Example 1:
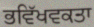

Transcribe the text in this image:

ਭਵਿੱਖਵਕਤਾ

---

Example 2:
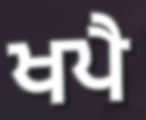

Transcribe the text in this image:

ਖਪੈ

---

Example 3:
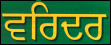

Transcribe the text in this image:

ਵਰਿਦਰ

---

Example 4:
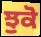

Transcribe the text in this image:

ਝੁਕੋ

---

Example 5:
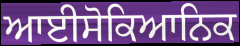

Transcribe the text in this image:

ਆਈਸੋਕਿਆਨਿਕ